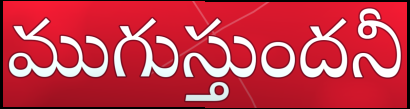
ముగుస్తుందనీ